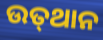
ଉତ୍‍ଥାନ